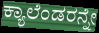
ಕ್ಯಾಲೆಂಡರನ್ನೇ